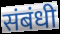
संबंधी